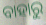
ବାହାରୁ